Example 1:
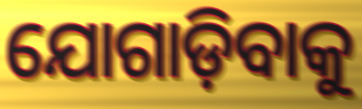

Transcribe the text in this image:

ଯୋଗାଡ଼ିବାକୁ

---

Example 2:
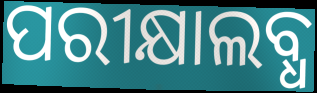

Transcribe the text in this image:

ପରୀକ୍ଷାଲବ୍ଧ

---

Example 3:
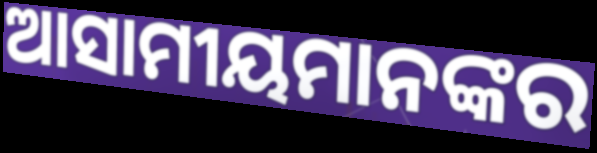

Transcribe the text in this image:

ଆସାମୀୟମାନଙ୍କର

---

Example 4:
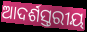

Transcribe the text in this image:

ଆଦର୍ଶସ୍ତରୀୟ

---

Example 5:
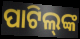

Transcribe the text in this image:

ପାଟିଲ୍‌ଙ୍କ